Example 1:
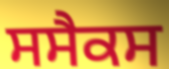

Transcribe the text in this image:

ਸਸੈਕਸ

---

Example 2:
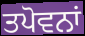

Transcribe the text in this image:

ਤਪੋਵਨਾਂ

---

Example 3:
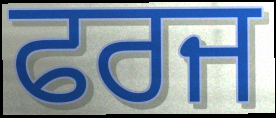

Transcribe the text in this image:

ਫਰਜ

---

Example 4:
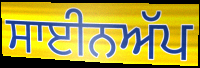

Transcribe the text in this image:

ਸਾਈਨਅੱਪ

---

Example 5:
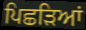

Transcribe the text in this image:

ਪਿਛੜਿਆਂ